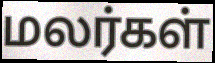
மலர்கள்